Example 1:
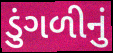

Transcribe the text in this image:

ડુંગળીનું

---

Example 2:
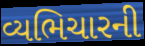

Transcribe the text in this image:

વ્યભિચારની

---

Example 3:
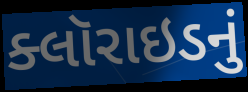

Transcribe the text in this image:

ક્લૉરાઇડનું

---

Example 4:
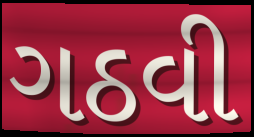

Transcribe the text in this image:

ગઠવી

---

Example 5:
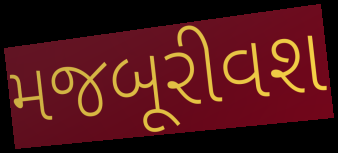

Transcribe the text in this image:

મજબૂરીવશ